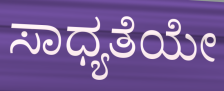
ಸಾಧ್ಯತೆಯೇ